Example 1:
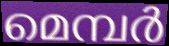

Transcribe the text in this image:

മെമ്പർ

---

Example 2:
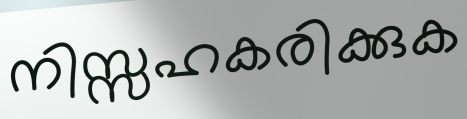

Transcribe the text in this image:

നിസ്സഹകരിക്കുക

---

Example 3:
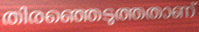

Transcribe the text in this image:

തിരഞ്ഞെടുത്തതാണ്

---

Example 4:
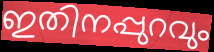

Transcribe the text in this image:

ഇതിനപ്പുറവും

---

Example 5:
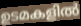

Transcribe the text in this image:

ഉടമകളിൽ